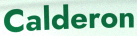
Calderon